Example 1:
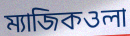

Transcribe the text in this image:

ম্যাজিকওলা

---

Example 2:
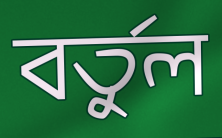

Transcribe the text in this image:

বর্তুল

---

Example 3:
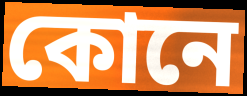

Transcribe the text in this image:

কোনে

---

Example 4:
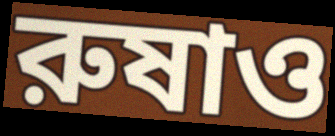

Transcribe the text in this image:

রুষাও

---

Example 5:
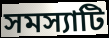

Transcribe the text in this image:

সমস্যাটি